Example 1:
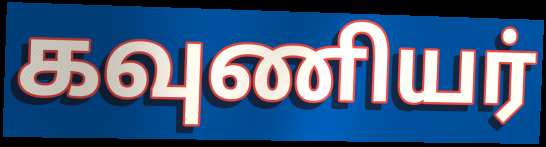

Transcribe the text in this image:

கவுணியர்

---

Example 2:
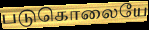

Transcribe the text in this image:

படுகொலையே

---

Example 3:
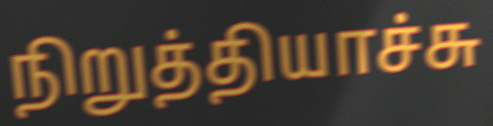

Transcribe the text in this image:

நிறுத்தியாச்சு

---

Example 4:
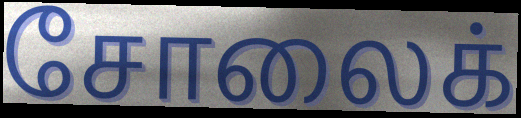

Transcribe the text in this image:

சோலைக்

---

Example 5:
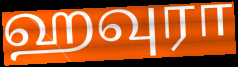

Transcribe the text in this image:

ஹவுரா